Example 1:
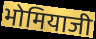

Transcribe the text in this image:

भोमियाजी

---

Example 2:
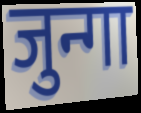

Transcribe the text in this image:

जुन्गा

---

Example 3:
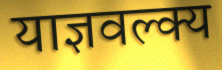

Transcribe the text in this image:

याज्ञवल्क्य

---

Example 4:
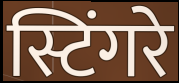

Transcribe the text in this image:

स्टिंगरे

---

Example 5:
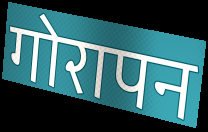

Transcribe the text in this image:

गोरापन